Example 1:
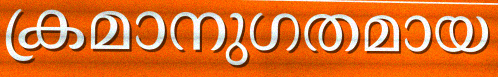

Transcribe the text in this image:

ക്രമാനുഗതമായ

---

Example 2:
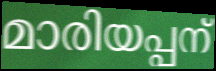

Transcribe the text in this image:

മാരിയപ്പന്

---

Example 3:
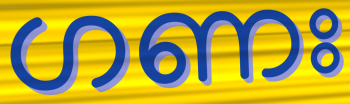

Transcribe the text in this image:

ഗണഃ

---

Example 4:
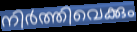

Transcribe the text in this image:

നിർത്തിവെക്കും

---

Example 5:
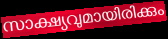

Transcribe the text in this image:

സാക്ഷ്യവുമായിരിക്കും